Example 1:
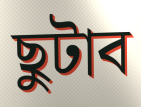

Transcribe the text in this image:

ছুটাব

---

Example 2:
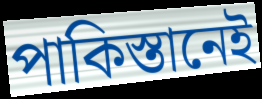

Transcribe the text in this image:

পাকিস্তানেই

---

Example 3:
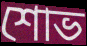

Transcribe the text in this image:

শোভ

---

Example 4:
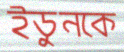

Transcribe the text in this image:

ইডুনকে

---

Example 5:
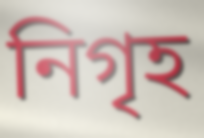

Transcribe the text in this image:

নিগৃহ